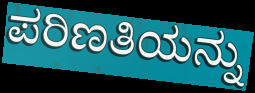
ಪರಿಣತಿಯನ್ನು